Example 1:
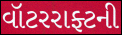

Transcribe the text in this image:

વૉટરરાફ્ટની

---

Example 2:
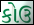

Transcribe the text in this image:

કોઉ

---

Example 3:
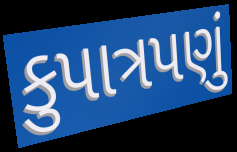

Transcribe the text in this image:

કુપાત્રપણું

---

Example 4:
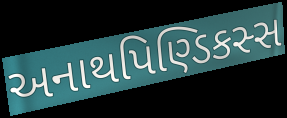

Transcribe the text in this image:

અનાથપિણ્ડિકસ્સ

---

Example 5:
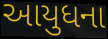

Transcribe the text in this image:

આયુધના